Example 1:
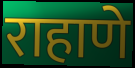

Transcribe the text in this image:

राहाणे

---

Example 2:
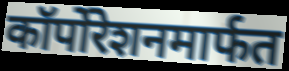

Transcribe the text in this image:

कॉर्पोरेशनमार्फत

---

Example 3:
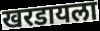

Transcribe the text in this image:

खरडायला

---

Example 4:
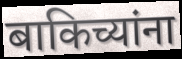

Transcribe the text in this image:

बाकिच्यांना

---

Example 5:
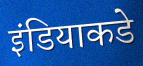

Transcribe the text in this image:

इंडियाकडे